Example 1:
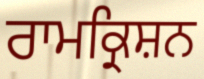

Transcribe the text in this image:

ਰਾਮਕ੍ਰਿਸ਼ਨ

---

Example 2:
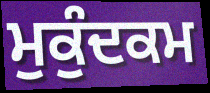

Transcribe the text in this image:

ਮੁਕੁੰਦਕਮ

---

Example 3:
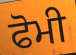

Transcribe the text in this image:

ਫੋਮੀ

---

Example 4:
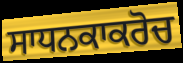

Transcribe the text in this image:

ਸਾਧਨਕਾਕਰੋਚ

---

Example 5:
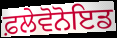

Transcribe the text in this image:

ਫ਼ਲੇਵੋਨੋਇਡ